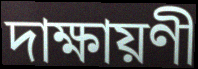
দাক্ষায়ণী